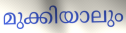
മുക്കിയാലും